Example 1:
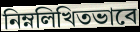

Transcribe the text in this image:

নিম্নলিখিতভাবে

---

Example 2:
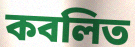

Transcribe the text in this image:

কবলিত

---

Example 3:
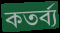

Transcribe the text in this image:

কতর্ব্য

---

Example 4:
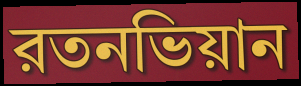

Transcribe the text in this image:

রতনভিয়ান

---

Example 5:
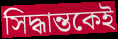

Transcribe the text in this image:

সিদ্ধান্তকেই